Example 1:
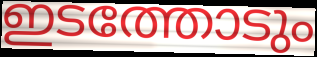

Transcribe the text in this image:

ഇടത്തോടും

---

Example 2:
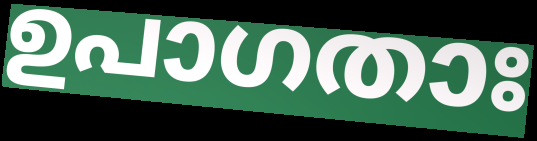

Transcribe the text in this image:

ഉപാഗതാഃ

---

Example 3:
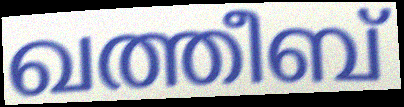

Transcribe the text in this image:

ഖത്തീബ്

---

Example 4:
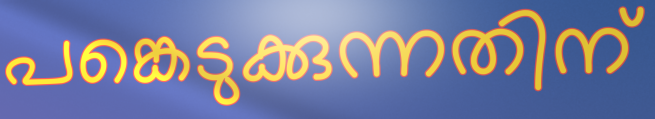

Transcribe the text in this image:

പങ്കെടുക്കുന്നതിന്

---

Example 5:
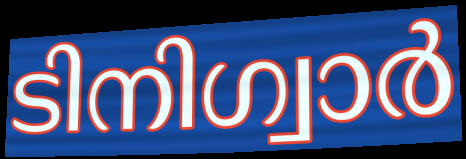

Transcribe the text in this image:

ടിനിഗ്വാർ